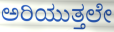
ಅರಿಯುತ್ತಲೇ